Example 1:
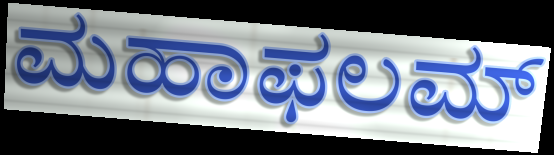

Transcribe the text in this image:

ಮಹಾಫಲಮ್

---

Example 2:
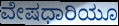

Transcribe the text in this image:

ವೇಷಧಾರಿಯೂ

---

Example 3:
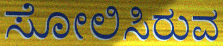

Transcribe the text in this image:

ಸೋಲಿಸಿರುವ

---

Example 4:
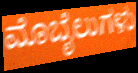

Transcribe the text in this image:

ಮೊಬೈಲುಗಳು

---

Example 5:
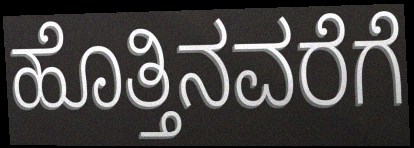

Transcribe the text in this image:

ಹೊತ್ತಿನವರೆಗೆ